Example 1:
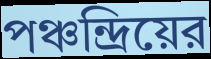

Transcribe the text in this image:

পঞ্চন্দ্রিয়ের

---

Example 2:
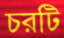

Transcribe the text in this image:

চরটি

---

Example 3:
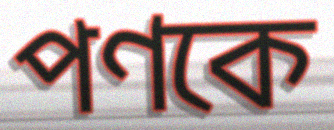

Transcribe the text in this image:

পণকে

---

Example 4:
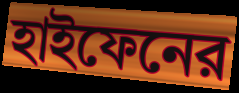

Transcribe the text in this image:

হাইফেনের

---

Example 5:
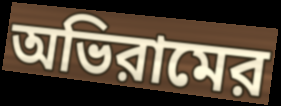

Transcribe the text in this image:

অভিরামের